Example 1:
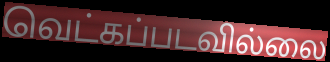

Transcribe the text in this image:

வெட்கப்படவில்லை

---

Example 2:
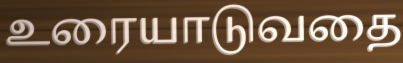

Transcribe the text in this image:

உரையாடுவதை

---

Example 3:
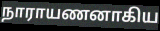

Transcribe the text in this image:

நாராயணனாகிய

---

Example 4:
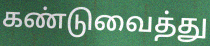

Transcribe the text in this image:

கண்டுவைத்து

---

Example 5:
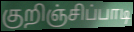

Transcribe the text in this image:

குறிஞ்சிப்பாடி